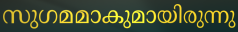
സുഗമമാകുമായിരുന്നു